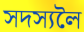
সদস্যলৈ